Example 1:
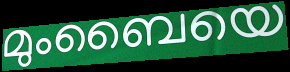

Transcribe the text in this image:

മുംബൈയെ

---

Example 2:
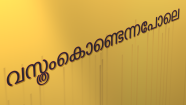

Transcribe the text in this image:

വസ്ത്രംകൊണ്ടെന്നപോലെ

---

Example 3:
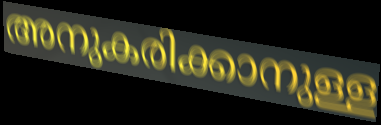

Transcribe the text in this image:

അനുകരിക്കാനുള്ള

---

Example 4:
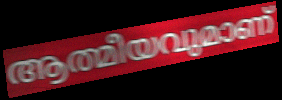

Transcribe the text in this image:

ആത്മീയവുമാണ്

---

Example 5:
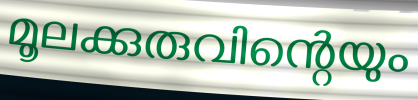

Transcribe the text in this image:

മൂലക്കുരുവിന്റെയും